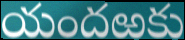
యందఱకు